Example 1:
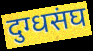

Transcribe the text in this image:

दुग्धसंघ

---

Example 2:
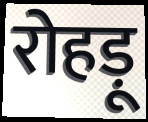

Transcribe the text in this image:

रोहड़ू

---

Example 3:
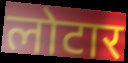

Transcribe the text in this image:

लोटार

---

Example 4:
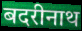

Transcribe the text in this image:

बदरीनाथ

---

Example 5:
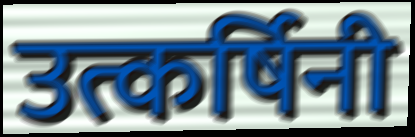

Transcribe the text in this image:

उत्कर्षिनी